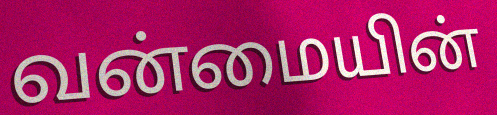
வன்மையின்